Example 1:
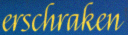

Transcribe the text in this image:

erschraken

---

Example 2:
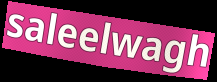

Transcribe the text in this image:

saleelwagh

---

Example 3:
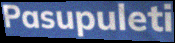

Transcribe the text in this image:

Pasupuleti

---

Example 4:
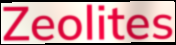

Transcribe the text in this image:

Zeolites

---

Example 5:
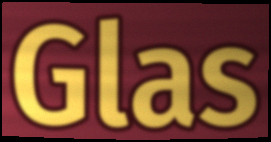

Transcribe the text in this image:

Glas